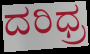
ದರಿಧ್ರ